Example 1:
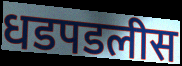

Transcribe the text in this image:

धडपडलीस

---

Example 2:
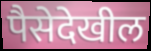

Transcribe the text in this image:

पैसेदेखील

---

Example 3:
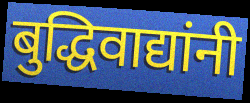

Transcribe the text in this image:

बुद्धिवाद्यांनी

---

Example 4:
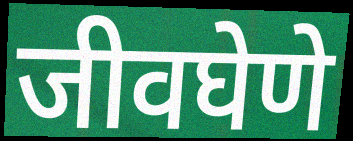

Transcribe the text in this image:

जीवघेणे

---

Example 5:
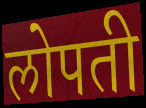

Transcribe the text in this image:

लोपती